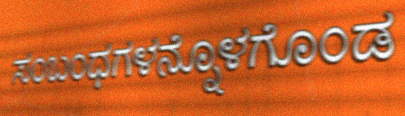
ಸಂಬಂಧಗಳನ್ನೊಳಗೊಂಡ